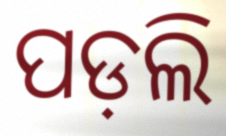
ପଡ଼ଲି